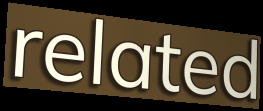
related